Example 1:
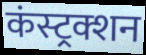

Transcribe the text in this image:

कंस्‍ट्रक्‍शन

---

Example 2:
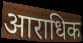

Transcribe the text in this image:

आराधिक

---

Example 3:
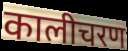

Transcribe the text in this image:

कालीचरण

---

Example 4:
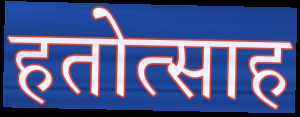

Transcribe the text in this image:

हतोत्साह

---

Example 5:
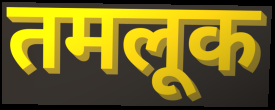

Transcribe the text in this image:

तमलूक